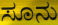
ಸೂನು